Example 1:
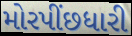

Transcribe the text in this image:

મોરપીંછધારી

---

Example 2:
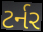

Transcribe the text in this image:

ટર્નર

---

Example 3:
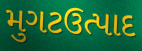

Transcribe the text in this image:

મુગટઉત્પાદ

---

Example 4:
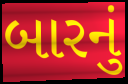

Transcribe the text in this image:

બારનું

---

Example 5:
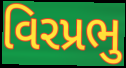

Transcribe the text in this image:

વિરપ્રભુ